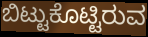
ಬಿಟ್ಟುಕೊಟ್ಟಿರುವ